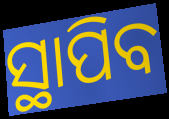
ସ୍ଥାପିବ